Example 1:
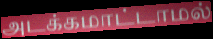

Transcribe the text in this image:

அடக்கமாட்டாமல்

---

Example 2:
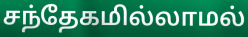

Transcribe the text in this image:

சந்தேகமில்லாமல்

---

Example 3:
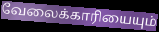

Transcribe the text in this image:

வேலைக்காரியையும்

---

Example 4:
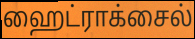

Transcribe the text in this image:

ஹைட்ராக்சைல்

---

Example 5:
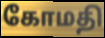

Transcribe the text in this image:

கோமதி